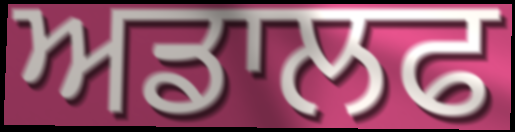
ਅਡਾਲਫ